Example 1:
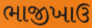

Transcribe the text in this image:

ભાજીખાઉ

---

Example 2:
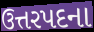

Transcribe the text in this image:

ઉત્તરપદના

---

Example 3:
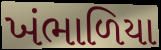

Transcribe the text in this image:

ખંભાળિયા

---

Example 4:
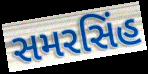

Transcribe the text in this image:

સમરસિંહ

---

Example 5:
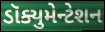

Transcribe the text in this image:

ડૉક્યુમેન્ટેશન